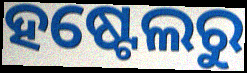
ହଷ୍ଟେଲରୁ